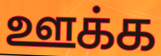
ஊக்க